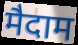
मैदाम